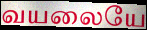
வயலையே